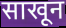
साखून